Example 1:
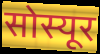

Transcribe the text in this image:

सोस्यूर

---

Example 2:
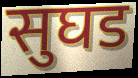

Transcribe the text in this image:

सुघड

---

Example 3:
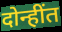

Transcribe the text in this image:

दोन्हींत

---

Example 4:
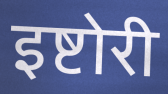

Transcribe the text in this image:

इष्टोरी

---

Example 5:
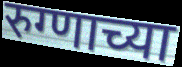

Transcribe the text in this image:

रुग्णाच्या